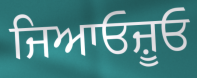
ਜਿਆਓਜ਼ੂਓ